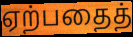
ஏற்பதைத்